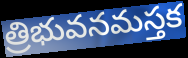
త్రిభువనమస్తక